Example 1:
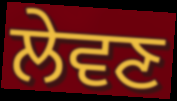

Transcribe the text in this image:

ਲੇਵਣ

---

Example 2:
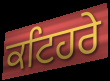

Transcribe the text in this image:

ਕਟਿਹਰੇ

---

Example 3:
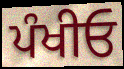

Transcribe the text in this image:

ਪੰਖੀਓ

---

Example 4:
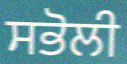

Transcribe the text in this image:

ਸਭੋਲੀ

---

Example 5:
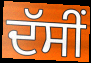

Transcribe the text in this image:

ਦੱਸੀਂ